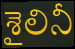
శైలినీ